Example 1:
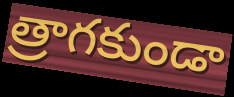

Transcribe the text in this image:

త్రాగకుండా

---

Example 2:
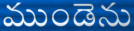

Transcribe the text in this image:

ముండెను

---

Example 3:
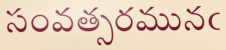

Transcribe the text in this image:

సంవత్సరమునఁ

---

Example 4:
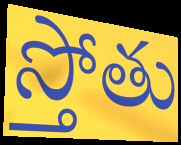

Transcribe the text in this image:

స్తోతు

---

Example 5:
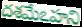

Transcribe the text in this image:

దశమేఽహని